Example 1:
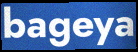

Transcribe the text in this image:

bageya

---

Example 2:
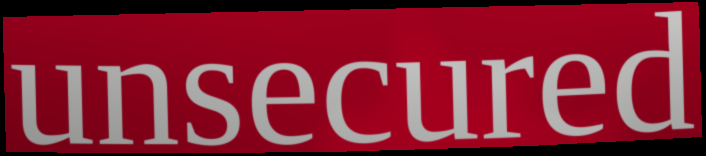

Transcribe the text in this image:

unsecured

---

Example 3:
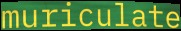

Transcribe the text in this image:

muriculate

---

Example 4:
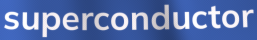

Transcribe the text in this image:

superconductor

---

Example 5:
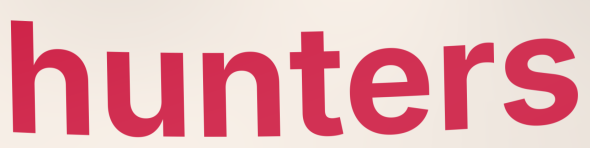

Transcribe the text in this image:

hunters